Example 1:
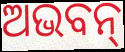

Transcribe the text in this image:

ଅଭବନ୍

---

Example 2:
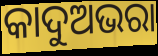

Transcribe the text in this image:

କାଦୁଅଭରା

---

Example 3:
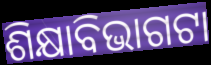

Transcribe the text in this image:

ଶିକ୍ଷାବିଭାଗଟା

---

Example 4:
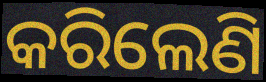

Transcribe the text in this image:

କରିଲେଣି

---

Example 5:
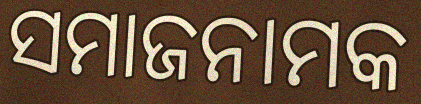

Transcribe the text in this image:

ସମାଜନାମକ